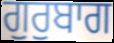
ਗੁਰੁਬਾਗ